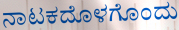
ನಾಟಕದೊಳಗೊಂದು